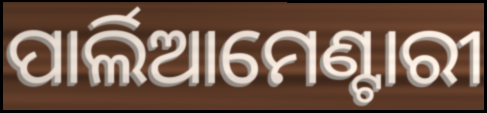
ପାର୍ଲିଆମେଣ୍ଟାରୀ